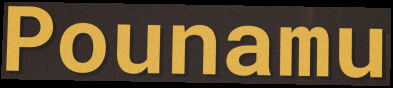
Pounamu